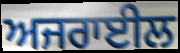
ਅਜਰਾਈਲ